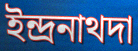
ইন্দ্রনাথদা